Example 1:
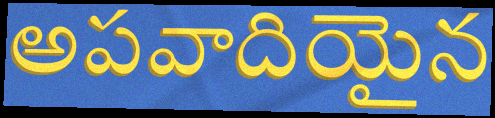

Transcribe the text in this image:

అపవాదియైన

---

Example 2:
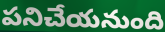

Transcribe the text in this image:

పనిచేయనుంది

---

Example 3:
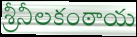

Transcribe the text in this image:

శ్రీనీలకంఠాయ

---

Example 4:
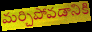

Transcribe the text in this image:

మర్చిపోవడానికి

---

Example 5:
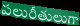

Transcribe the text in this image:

పలురీతులుగా